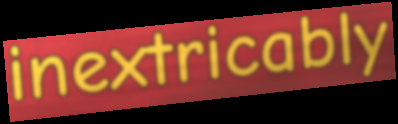
inextricably